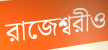
রাজেশ্বরীও